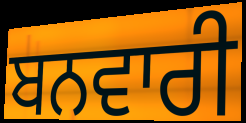
ਬਨਵਾਰੀ